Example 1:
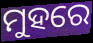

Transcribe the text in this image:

ମୁହରେ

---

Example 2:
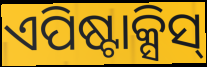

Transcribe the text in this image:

ଏପିଷ୍ଟାକ୍ସିସ୍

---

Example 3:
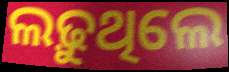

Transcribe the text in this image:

ଲଢ଼ୁଥିଲେ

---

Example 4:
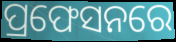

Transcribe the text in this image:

ପ୍ରଫେସନରେ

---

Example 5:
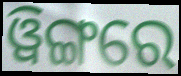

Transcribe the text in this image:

ୱିଙ୍ଗରେ